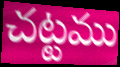
చట్టము